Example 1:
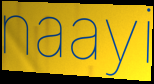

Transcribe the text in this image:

naayi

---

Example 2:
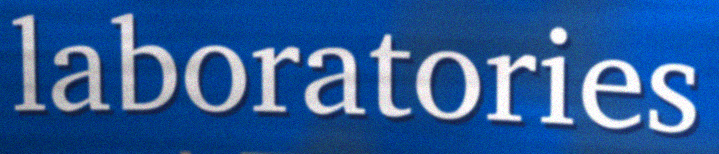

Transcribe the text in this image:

laboratories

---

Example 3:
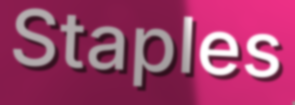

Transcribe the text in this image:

Staples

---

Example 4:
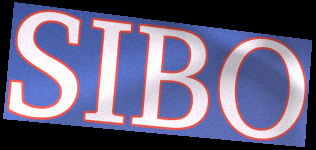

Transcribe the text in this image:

SIBO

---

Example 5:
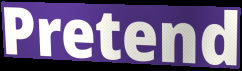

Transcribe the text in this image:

Pretend